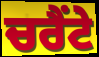
ਚਰੈਂਟੇ